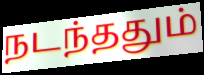
நடந்ததும்